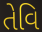
તેવિ